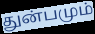
துன்பமும்